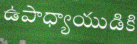
ఉపాధ్యాయుడికి